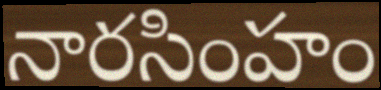
నారసింహం